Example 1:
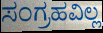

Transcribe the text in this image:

ಸಂಗ್ರಹವಿಲ್ಲ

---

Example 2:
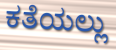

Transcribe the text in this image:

ಕತೆಯಲ್ಲು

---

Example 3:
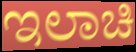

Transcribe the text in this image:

ಇಲಾಚಿ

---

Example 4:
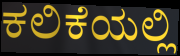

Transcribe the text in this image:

ಕಲಿಕೆಯಲ್ಲಿ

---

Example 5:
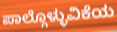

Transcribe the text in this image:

ಪಾಲ್ಗೊಳ್ಳುವಿಕೆಯ